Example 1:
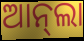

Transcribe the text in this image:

ଆନ୍‌ଲା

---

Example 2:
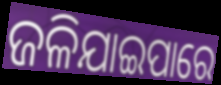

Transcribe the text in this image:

ଜଳିଯାଇପାରେ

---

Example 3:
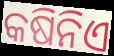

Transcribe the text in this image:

କଷିନିଏ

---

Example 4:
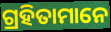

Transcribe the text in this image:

ଗ୍ରହିତାମାନେ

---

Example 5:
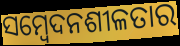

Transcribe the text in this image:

ସମ୍ୱେଦନଶୀଳତାର